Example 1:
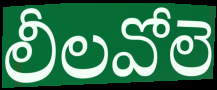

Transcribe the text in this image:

లీలవోలె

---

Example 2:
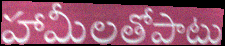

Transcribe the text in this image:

హామీలతోపాటు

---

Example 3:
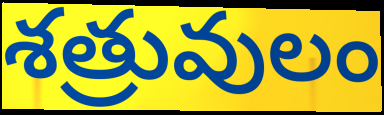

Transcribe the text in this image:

శత్రువులం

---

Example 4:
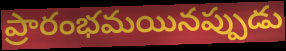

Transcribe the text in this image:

ప్రారంభమయినప్పుడు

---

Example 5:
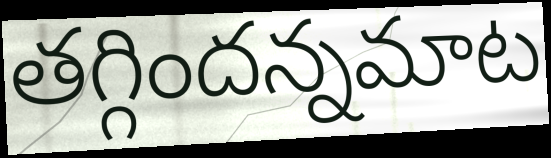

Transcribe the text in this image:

తగ్గిందన్నమాట